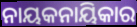
ନାୟକନାୟିକାର